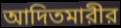
আদিতমারীর